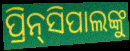
ପ୍ରିନ୍‌ସିପାଲଙ୍କୁ